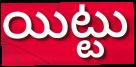
యిట్టు